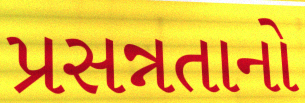
પ્રસન્નતાનો